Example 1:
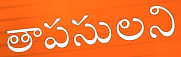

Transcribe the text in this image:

తాపసులని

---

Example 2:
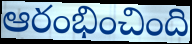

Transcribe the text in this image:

ఆరంభించింది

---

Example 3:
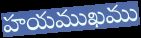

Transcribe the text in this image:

హయముఖము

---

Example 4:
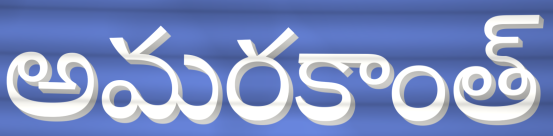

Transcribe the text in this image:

అమరకాంత్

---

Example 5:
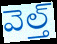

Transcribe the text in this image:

వెల్త్